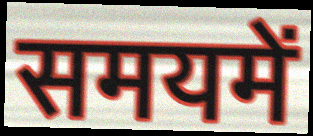
समयमें